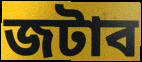
জটাব